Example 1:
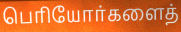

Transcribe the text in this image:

பெரியோர்களைத்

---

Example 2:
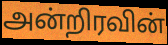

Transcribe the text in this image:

அன்றிரவின்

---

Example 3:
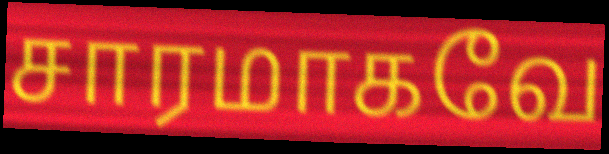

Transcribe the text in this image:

சாரமாகவே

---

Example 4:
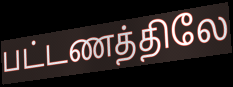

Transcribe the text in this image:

பட்டணத்திலே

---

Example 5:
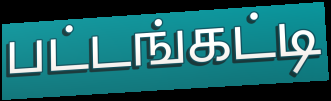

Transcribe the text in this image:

பட்டங்கட்டி